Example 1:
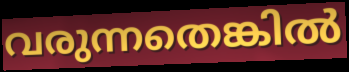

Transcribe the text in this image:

വരുന്നതെങ്കിൽ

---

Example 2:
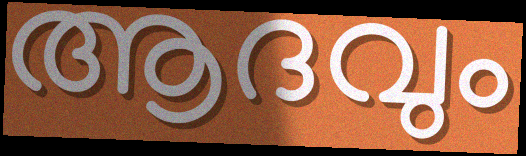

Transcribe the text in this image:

ആദവും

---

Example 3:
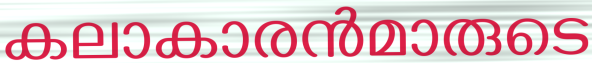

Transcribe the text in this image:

കലാകാരൻമാരുടെ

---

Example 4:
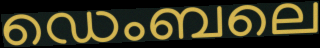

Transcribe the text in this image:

ഡെംബലെ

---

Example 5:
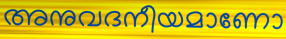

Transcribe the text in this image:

അനുവദനീയമാണോ